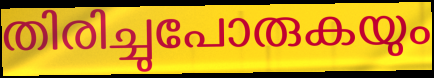
തിരിച്ചുപോരുകയും